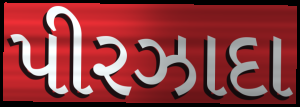
પીરઝાદા